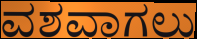
ವಶವಾಗಲು